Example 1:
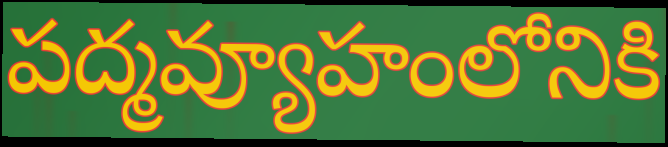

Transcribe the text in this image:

పద్మవ్యూహంలోనికి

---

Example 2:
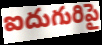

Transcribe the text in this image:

ఐదుగురిపై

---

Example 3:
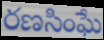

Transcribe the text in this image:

రణసింఘే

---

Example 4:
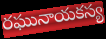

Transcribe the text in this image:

రఘునాయకస్య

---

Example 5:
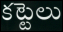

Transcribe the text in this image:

కట్టెలు